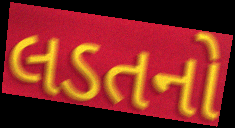
લડતનો